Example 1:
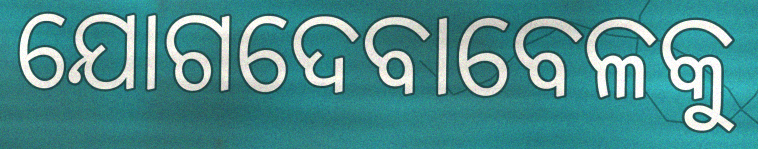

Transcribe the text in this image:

ଯୋଗଦେବାବେଳକୁ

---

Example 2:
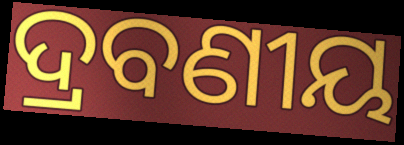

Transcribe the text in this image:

ଦ୍ରବଣୀୟ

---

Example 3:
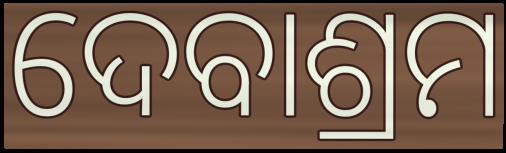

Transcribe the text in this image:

ଦେବାଶ୍ରମ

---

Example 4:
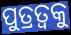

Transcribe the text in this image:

ପୁତ୍ରତ୍ଵକୁ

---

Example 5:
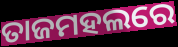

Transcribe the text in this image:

ତାଜମହଲରେ